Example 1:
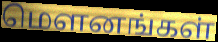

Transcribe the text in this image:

மௌனங்கள்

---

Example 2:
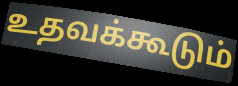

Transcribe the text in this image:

உதவக்கூடும்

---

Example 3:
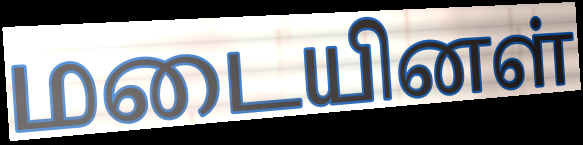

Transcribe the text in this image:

மடையினள்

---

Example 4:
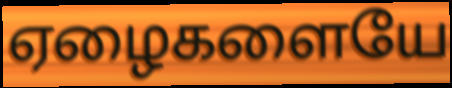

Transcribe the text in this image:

ஏழைகளையே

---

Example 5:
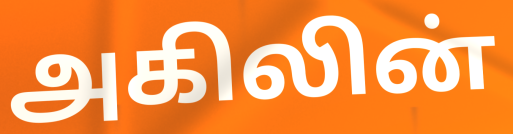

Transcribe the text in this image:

அகிலின்